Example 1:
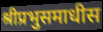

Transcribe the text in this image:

श्रीप्रभुसमाधीस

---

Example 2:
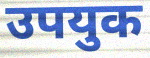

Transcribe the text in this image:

उपयुक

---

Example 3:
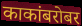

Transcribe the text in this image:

काकांबरोबर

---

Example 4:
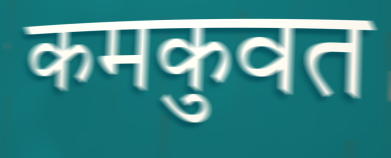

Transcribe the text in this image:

कमकुवत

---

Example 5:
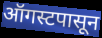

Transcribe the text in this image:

ऑगस्टपासून